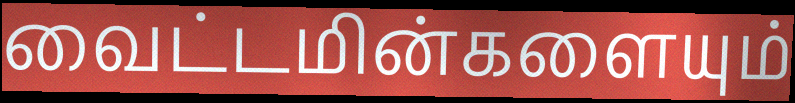
வைட்டமின்களையும்